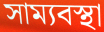
সাম্যবস্থা